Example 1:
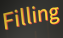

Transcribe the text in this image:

Filling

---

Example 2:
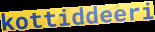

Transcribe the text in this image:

kottiddeeri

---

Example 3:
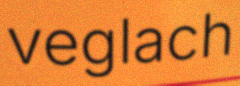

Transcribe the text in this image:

veglach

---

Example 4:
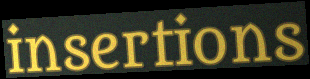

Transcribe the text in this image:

insertions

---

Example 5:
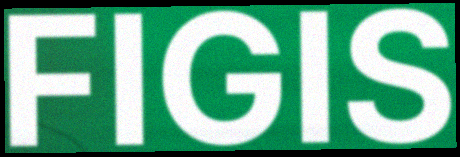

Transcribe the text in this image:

FIGIS